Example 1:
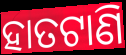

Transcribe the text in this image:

ହାତଟାଣି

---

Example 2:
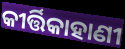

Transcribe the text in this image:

କୀର୍ତ୍ତିକାହାଣୀ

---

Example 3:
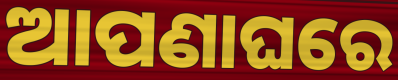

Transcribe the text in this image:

ଆପଣାଘରେ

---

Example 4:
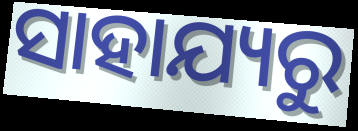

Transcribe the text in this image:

ସାହାଯ୍ୟରୁ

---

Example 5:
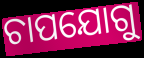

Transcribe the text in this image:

ଚାପଯୋଗୁ